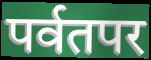
पर्वतपर